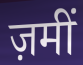
ज़मीं